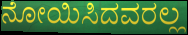
ನೋಯಿಸಿದವರಲ್ಲ